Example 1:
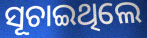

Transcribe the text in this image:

ସୂଚାଇଥିଲେ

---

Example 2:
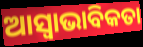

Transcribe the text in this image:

ଆସ୍ବାଭାବିକତା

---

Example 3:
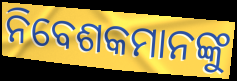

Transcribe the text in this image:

ନିବେଶକମାନଙ୍କୁ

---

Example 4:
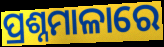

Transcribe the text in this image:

ପ୍ରଶ୍ନମାଳାରେ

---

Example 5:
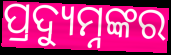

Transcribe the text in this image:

ପ୍ରଦ୍ୟୁମ୍ନଙ୍କର